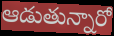
ఆడుతున్నారో